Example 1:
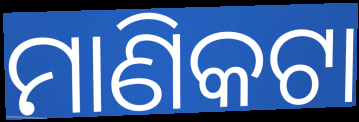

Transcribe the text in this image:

ମାଣିକଟା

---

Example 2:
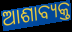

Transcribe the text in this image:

ଆଶାବ୍ୟକ୍ତ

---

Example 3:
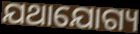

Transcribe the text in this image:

ଯଥାଯୋଗ୍ୟ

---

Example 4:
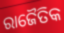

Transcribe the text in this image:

ରାଜୈତିକ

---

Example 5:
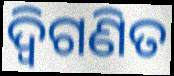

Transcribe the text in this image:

ଦ୍ୱିଗଣିତ